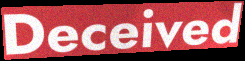
Deceived